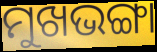
ମୁଖଭଙ୍ଗା